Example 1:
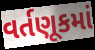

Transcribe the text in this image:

વર્તણૂકમાં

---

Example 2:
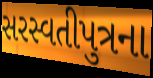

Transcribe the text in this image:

સરસ્વતીપુત્રના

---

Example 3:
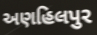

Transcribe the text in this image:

અણહિલપુર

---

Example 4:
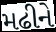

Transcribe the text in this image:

મઢીને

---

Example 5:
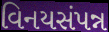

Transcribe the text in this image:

વિનયસંપન્ન